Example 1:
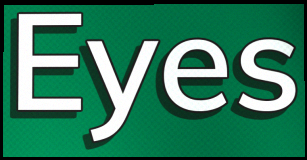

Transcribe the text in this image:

Eyes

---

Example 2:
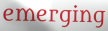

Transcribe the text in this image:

emerging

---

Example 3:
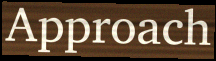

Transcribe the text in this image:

Approach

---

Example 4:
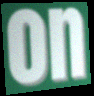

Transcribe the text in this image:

on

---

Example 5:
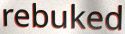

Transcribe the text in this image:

rebuked